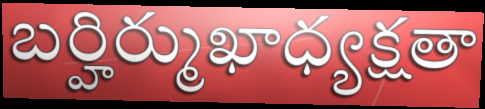
బర్హిర్ముఖాధ్యక్షతా